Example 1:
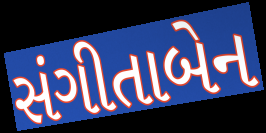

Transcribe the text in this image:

સંગીતાબેન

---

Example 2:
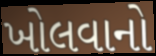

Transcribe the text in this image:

ખોલવાનો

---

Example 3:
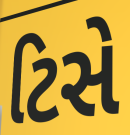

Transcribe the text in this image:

ટિસે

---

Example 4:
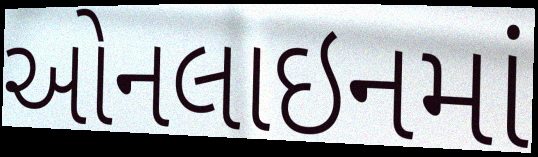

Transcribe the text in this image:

ઓનલાઇનમાં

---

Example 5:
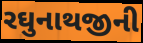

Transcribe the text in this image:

રઘુનાથજીની